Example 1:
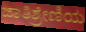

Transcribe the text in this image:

ಜಾತಿಶ್ರೇಣಿಯ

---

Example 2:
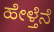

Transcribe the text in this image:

ಹೇಳ್ತೆನೆ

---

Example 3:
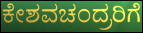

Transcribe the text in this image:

ಕೇಶವಚಂದ್ರರಿಗೆ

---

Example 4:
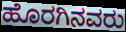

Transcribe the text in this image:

ಹೊರಗಿನವರು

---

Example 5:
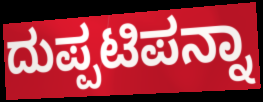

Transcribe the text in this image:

ದುಪ್ಪಟಿಪನ್ನಾ